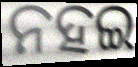
ନହଇ